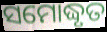
ସମୋଦ୍ଧୃତ